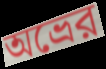
অভ্রের